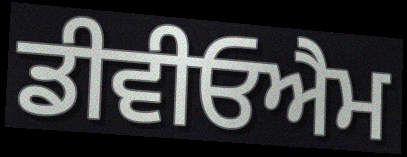
ਡੀਵੀਓਐਮ